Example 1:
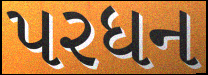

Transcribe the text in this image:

પરધન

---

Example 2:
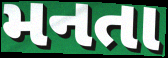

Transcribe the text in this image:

મનતા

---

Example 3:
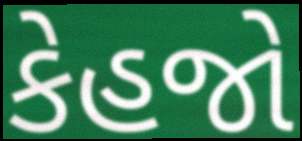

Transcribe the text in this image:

કેહજો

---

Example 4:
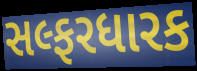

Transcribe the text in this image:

સલ્ફરધારક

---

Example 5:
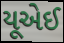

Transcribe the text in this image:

યૂએઈ